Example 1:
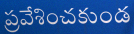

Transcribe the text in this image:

ప్రవేశించకుండ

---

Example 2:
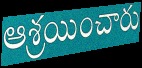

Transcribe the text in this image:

ఆశ్రయించారు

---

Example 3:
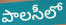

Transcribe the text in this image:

పాలసీలో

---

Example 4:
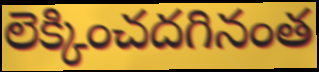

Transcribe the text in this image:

లెక్కించదగినంత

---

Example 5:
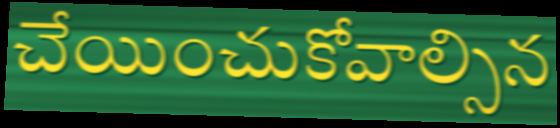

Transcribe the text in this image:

చేయించుకోవాల్సిన